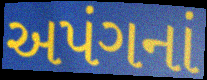
અપંગનાં